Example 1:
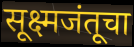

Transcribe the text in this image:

सूक्ष्मजंतूचा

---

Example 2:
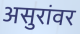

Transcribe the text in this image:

असुरांवर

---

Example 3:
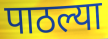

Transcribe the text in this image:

पाठल्या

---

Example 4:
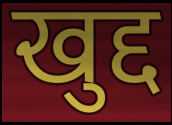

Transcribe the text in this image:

खुद्द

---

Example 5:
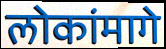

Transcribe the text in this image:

लोकांमागे